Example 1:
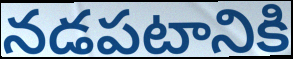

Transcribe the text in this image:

నడపటానికి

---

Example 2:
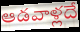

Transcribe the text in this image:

ఆడవాళ్లదే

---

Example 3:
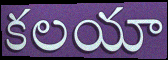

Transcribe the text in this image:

కలయా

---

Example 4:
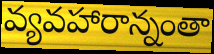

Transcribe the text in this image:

వ్యవహారాన్నంతా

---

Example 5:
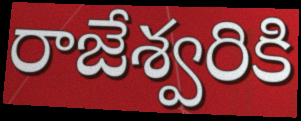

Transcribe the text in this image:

రాజేశ్వరికి